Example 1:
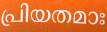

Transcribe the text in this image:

പ്രിയതമാഃ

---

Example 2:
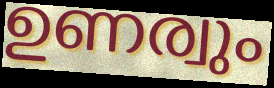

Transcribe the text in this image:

ഉണര്വും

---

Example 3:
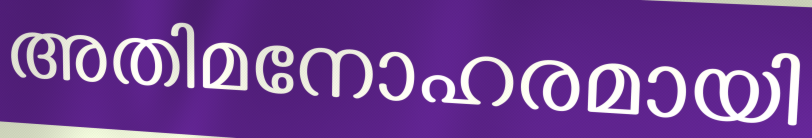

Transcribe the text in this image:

അതിമനോഹരമായി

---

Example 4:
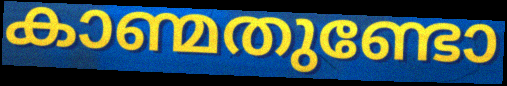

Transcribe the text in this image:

കാണ്മതുണ്ടോ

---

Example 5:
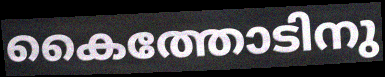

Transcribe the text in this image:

കൈത്തോടിനു